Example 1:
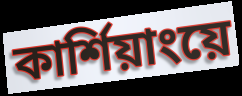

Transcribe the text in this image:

কার্শিয়াংয়ে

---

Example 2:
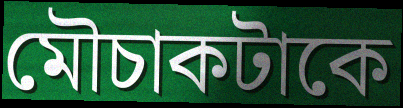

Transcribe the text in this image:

মৌচাকটাকে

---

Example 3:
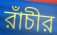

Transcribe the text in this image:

রাঁচীর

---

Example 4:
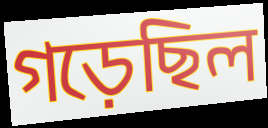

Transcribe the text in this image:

গড়েছিল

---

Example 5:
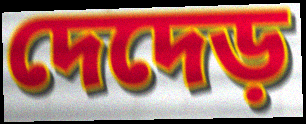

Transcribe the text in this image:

দেদেড়